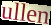
ullen